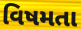
વિષમતા